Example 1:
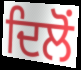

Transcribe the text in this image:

ਦਿਲੋਂ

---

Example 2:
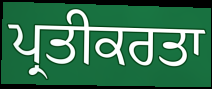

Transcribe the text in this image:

ਪ੍ਰਤੀਕਰਤਾ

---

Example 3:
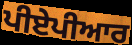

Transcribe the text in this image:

ਪੀਏਪੀਆਰ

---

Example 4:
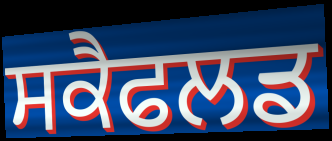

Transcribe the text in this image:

ਸਕੈਫਲਡ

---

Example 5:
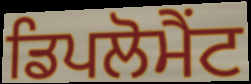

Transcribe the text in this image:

ਡਿਪਲੋਮੈਂਟ